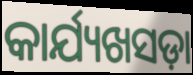
କାର୍ଯ୍ୟଖସଡ଼ା